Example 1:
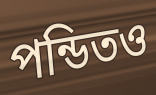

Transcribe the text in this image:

পন্ডিতও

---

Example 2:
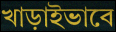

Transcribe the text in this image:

খাড়াইভাবে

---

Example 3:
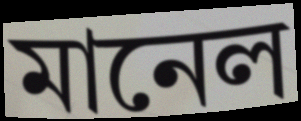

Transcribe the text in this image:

মানেল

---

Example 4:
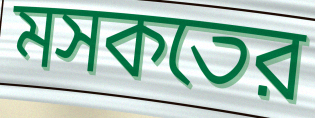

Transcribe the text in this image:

মসকতের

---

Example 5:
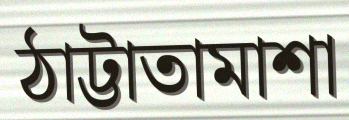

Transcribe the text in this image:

ঠাট্টাতামাশা